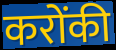
करोंकी